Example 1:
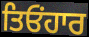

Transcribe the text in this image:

ਤਿਓਂਹਾਰ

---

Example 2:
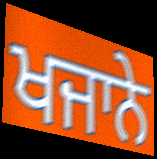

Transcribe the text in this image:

ਖਜਾਨੇ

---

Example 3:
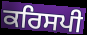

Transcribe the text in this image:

ਕਰਿਸਪੀ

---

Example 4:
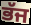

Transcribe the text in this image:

ਭੱਜ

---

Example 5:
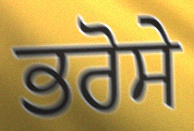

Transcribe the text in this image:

ਭਰੋਸੇ